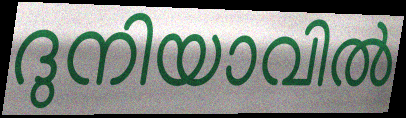
ദുനിയാവിൽ